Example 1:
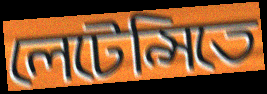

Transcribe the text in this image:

লেটেন্সিতে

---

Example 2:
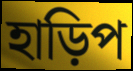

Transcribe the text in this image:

হাড়িপ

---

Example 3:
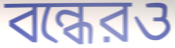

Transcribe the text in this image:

বন্ধেরও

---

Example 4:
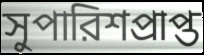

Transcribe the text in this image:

সুপারিশপ্রাপ্ত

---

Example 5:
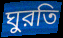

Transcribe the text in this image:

ঘুরতি